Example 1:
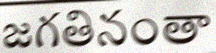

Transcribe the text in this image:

జగతినంతా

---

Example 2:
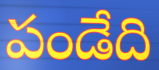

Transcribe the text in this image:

పండేది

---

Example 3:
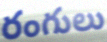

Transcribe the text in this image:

రంగులు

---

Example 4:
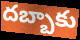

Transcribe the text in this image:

దబ్బాకు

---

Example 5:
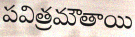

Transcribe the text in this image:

పవిత్రమౌతాయి